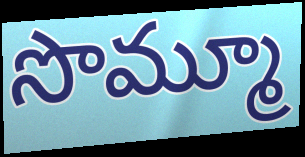
సొమ్మూ